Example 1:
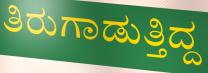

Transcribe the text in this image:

ತಿರುಗಾಡುತ್ತಿದ್ದ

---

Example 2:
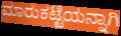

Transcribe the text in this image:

ಮಾರುಕಟ್ಟೆಯನ್ನಾಗಿ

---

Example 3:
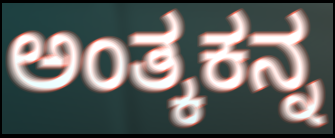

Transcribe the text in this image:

ಅಂತ್ಕಕನ್ನ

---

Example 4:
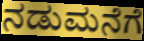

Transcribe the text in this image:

ನಡುಮನೆಗೆ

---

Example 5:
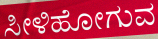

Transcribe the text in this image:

ಸೀಳಿಹೋಗುವ